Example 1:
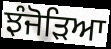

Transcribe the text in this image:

ਝੰਜੋੜਿਆ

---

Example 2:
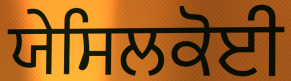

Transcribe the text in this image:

ਯੇਸਿਲਕੋਈ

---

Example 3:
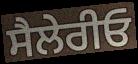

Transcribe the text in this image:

ਸੈਲੇਰੀਓ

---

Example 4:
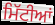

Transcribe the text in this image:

ਮਿੱਟੀਆਂ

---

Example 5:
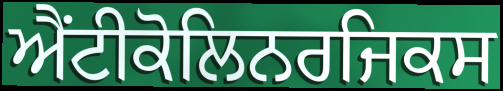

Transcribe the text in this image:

ਐਂਟੀਕੋਲਿਨਰਜਿਕਸ